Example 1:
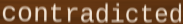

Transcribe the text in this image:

contradicted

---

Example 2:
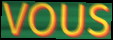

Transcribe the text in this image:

VOUS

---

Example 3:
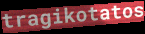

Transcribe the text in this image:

tragikotatos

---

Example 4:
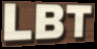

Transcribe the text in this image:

LBT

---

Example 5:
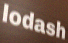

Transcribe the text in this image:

lodash